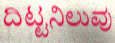
ದಿಟ್ಟನಿಲುವು